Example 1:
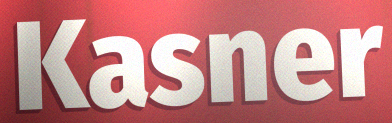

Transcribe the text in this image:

Kasner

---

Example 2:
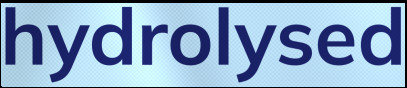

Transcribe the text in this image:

hydrolysed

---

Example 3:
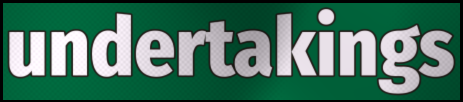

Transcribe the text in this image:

undertakings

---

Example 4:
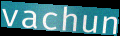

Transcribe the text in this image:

vachun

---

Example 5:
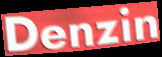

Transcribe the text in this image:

Denzin